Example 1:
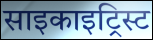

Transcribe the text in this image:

साइकाइट्रिस्ट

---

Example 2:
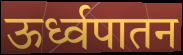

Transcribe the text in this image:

ऊर्ध्वपातन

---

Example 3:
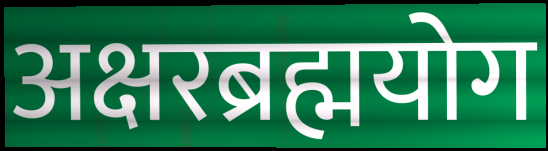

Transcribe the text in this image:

अक्षरब्रह्मयोग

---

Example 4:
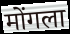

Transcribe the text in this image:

मोंगला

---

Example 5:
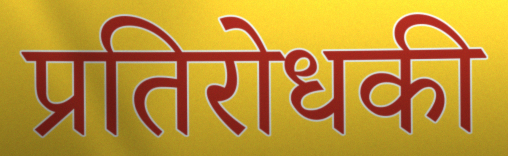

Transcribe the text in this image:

प्रतिरोधकी